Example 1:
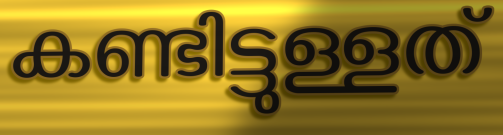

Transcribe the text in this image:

കണ്ടിട്ടുള്ളത്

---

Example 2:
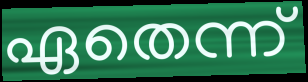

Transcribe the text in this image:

ഏതെന്ന്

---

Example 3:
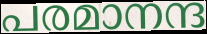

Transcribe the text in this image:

പരമാനന്ദ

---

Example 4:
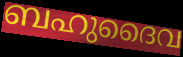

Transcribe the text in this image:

ബഹുദൈവ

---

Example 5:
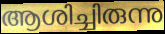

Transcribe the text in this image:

ആശിച്ചിരുന്നു